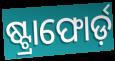
ଷ୍ଟ୍ରାଫୋର୍ଡ଼